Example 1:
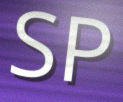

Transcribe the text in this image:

SP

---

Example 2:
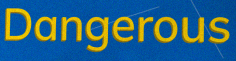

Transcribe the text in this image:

Dangerous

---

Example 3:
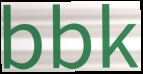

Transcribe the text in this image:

bbk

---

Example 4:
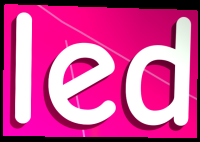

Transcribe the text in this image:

led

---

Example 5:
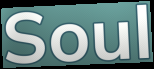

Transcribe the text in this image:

Soul